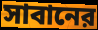
সাবানের